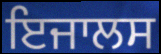
ਇਜਾਲਸ